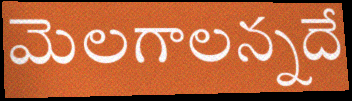
మెలగాలన్నదే